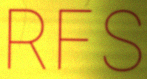
RFS